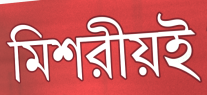
মিশরীয়ই